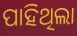
ପାହିଥିଲା